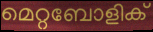
മെറ്റബോളിക്